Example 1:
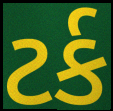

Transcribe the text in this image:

ટર્ક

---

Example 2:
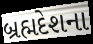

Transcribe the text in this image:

બ્રહ્મદેશના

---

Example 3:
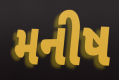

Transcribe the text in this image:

મનીષ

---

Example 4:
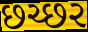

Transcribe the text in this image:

છચ્છર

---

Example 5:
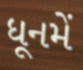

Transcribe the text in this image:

ધૂનમેં